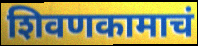
शिवणकामाचं